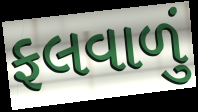
ફલવાળું